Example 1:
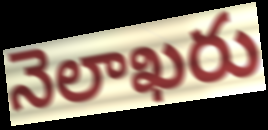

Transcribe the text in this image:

నెలాఖరు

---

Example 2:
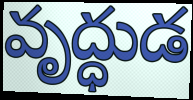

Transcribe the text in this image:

వృద్ధుడ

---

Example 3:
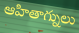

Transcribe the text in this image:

ఆహితాగ్నులు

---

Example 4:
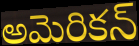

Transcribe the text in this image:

అమెరికన్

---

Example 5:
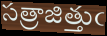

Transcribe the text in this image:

సత్రాజిత్తుఁ